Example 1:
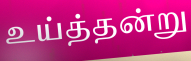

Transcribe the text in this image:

உய்த்தன்று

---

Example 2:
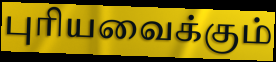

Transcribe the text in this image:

புரியவைக்கும்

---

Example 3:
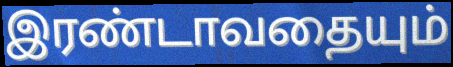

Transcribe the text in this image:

இரண்டாவதையும்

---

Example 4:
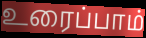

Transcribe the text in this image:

உரைப்பாம்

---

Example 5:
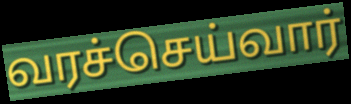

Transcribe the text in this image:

வரச்செய்வார்